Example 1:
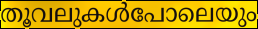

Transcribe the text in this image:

തൂവലുകൾപോലെയും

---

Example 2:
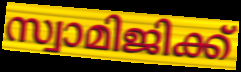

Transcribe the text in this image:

സ്വാമിജിക്ക്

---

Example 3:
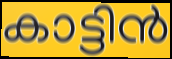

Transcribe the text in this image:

കാട്ടിൻ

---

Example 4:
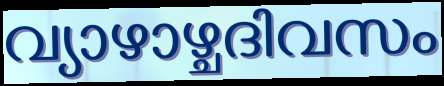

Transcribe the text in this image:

വ്യാഴാഴ്ചദിവസം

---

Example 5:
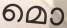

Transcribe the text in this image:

മൊ